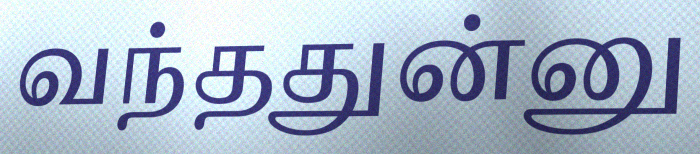
வந்ததுன்னு